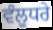
ਵੰਲੂਧਰੇ